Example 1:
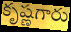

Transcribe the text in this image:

కృష్ణగారు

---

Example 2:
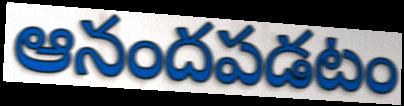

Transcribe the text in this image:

ఆనందపడటం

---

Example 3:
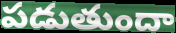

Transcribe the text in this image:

పడుతుందా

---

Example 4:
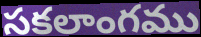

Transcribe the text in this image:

సకలాంగము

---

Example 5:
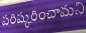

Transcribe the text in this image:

పరిష్కరించామని